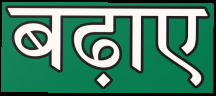
बढ़ाए